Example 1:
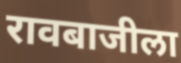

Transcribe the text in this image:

रावबाजीला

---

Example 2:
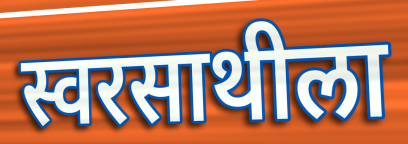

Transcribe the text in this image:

स्वरसाथीला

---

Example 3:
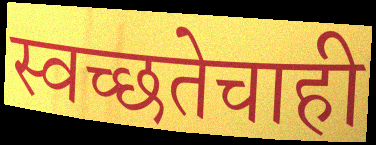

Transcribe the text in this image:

स्वच्छतेचाही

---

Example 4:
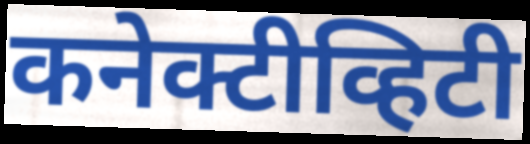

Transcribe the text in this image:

कनेक्टीव्हिटी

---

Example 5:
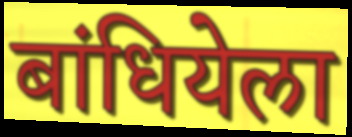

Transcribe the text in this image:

बांधियेला